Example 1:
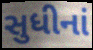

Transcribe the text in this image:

સુધીનાં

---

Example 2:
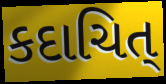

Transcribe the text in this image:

કદાચિત્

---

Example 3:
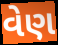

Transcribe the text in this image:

વેણ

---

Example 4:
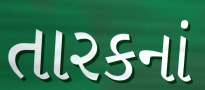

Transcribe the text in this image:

તારકનાં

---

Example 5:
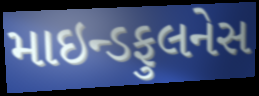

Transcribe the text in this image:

માઇન્ડફુલનેસ